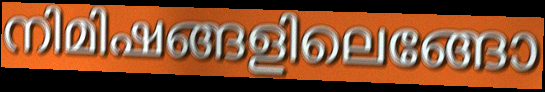
നിമിഷങ്ങളിലെങ്ങോ